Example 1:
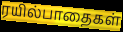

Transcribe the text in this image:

ரயில்பாதைகள்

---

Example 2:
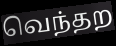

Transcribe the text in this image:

வெந்தற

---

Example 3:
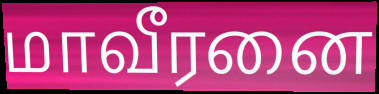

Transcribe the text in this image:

மாவீரனை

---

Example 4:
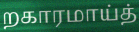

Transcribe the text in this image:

றகாரமாய்த்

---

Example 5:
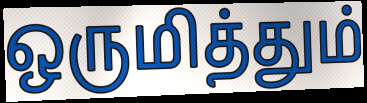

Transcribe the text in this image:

ஒருமித்தும்